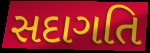
સદાગતિ